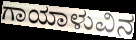
ಗಾಯಾಳುವಿನ